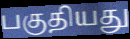
பகுதியது